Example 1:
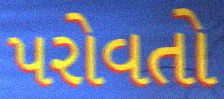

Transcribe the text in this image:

પરોવતો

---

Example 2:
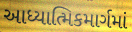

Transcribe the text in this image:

આધ્યાત્મિકમાર્ગમાં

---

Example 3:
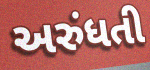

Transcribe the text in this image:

અરુંધતી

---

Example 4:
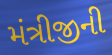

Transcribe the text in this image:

મંત્રીજીની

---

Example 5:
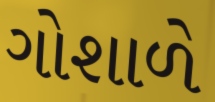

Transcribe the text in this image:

ગોશાળે